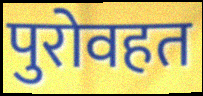
पुरोवहत